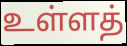
உள்ளத்